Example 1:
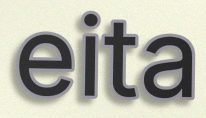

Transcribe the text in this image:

eita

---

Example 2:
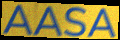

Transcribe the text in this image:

AASA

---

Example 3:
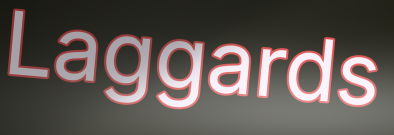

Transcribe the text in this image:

Laggards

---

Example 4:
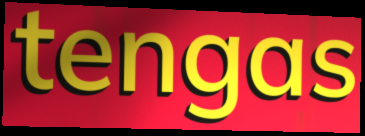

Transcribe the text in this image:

tengas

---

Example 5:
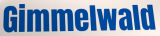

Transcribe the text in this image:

Gimmelwald